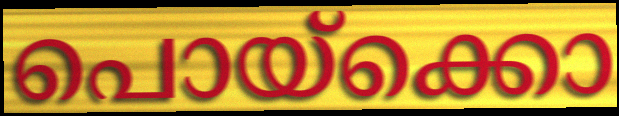
പൊയ്ക്കൊ